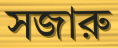
সজারু